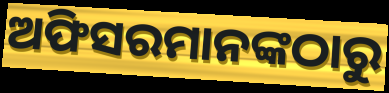
ଅଫିସରମାନଙ୍କଠାରୁ